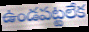
ఉండపట్టలేక